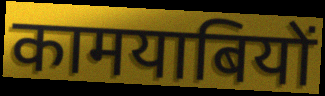
कामयाबियों